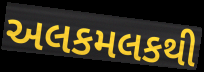
અલકમલકથી